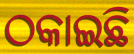
ଠକାଇଛି